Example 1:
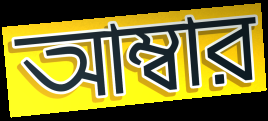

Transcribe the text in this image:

আম্বার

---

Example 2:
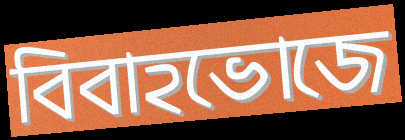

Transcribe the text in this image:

বিবাহভোজে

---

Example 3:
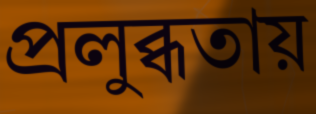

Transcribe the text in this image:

প্রলুব্ধতায়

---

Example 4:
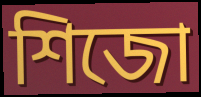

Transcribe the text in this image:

শিজো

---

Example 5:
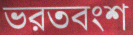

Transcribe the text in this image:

ভরতবংশ